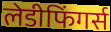
लेडीफिंगर्स